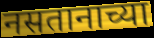
नसतानाच्या